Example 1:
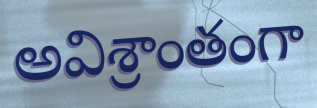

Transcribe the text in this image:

అవిశ్రాంతంగా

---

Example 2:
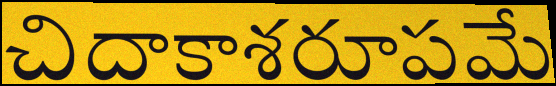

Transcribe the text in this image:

చిదాకాశరూపమే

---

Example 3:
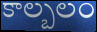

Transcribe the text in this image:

కాల్బలం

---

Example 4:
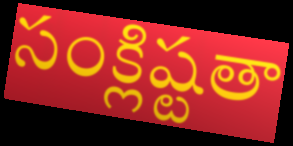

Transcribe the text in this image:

సంక్లిష్టతా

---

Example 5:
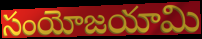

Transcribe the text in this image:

సంయోజయామి